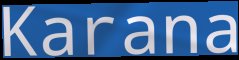
Karana